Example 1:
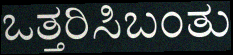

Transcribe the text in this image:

ಒತ್ತರಿಸಿಬಂತು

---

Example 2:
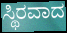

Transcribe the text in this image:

ಸ್ಥಿರವಾದ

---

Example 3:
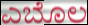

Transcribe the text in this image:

ಎಬೊಲ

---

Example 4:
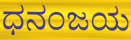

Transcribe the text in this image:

ಧನಂಜಯ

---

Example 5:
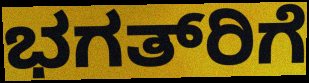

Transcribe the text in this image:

ಭಗತ್‍ರಿಗೆ